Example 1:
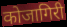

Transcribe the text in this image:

कोजागिरी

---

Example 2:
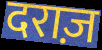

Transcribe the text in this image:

दराज़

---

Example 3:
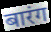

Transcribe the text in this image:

बारंग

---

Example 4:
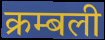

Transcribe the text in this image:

क्रम्बली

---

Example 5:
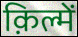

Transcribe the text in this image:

क़िल्में